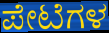
ಪೇಟೆಗಳ